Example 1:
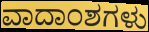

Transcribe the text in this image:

ವಾದಾಂಶಗಳು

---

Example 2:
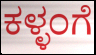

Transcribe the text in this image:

ಕಳ್ಳಂಗೆ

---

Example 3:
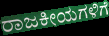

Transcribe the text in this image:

ರಾಜಕೀಯಗಳಿಗೆ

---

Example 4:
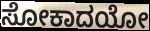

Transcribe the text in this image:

ಸೋಕಾದಯೋ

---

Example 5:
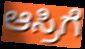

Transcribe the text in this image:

ಆಸ್ರಿಗೆ